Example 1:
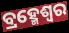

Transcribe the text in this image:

ବ୍ରହ୍ମେଶ୍ଵର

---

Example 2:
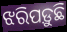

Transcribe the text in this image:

ଝରିପଡ଼ୁଛି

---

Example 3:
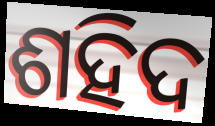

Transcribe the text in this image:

ଶହିଦ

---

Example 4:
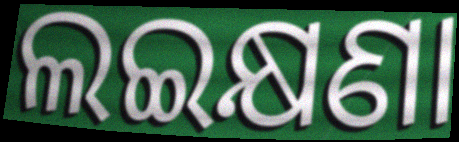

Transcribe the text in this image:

ଲଇକ୍ଷଣା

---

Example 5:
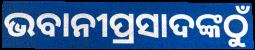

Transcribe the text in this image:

ଭବାନୀପ୍ରସାଦଙ୍କଠୁଁ